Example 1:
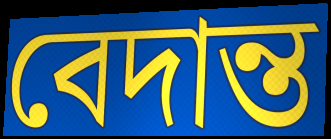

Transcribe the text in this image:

বেদান্ত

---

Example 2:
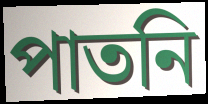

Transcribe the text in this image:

পাতনি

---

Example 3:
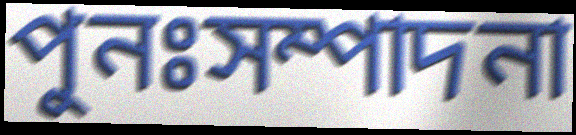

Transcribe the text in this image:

পুনঃসম্পাদনা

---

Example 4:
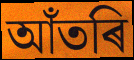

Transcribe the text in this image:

আঁতৰি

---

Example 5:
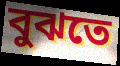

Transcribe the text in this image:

বুঝতে